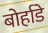
बोर्हाडे